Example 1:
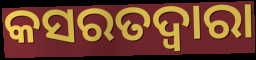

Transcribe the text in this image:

କସରତଦ୍ୱାରା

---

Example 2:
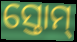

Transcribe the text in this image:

ସ୍ତୋମ୍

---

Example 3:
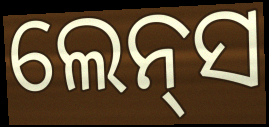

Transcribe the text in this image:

ଲେନ୍‍ସ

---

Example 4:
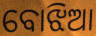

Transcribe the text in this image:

ବୋଝିଆ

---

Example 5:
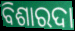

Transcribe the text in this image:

ବିଶାରଦା